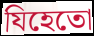
যিহেতো